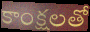
కాంక్షలతో